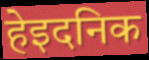
हेइदनिक